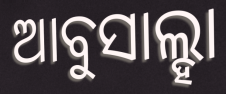
ଆବୁସାଲ୍ହା